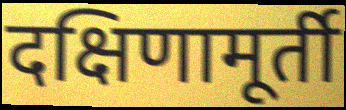
दक्षिणामूर्ती